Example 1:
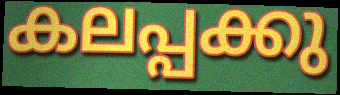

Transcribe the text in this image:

കലപ്പക്കു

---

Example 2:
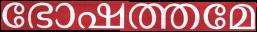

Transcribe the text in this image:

ഭോഷത്തമേ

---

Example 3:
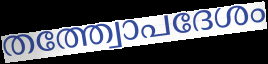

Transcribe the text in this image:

തത്ത്വോപദേശം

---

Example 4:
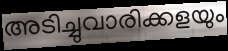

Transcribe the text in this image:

അടിച്ചുവാരിക്കളയും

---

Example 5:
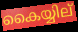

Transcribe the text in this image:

കൈയ്യില്